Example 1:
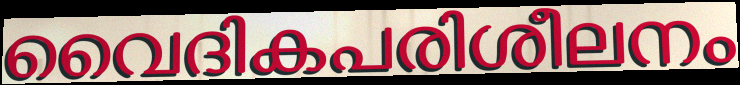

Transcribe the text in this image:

വൈദികപരിശീലനം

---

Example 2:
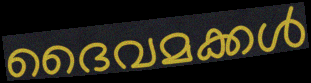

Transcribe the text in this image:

ദൈവമക്കൾ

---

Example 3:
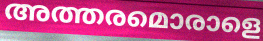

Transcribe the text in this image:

അത്തരമൊരാളെ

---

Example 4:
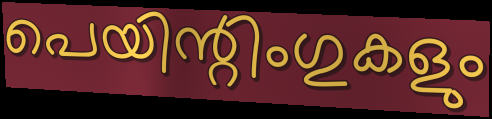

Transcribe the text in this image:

പെയിന്റിംഗുകളും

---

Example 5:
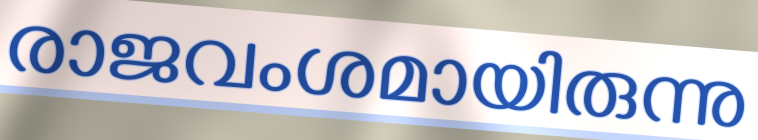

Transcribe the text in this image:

രാജവംശമായിരുന്നു